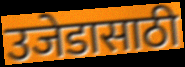
उजेडासाठी